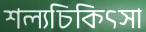
শল্যচিকিৎসা